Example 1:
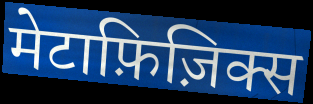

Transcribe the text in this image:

मेटाफ़िज़िक्स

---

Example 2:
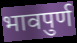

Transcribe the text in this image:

भावपुर्ण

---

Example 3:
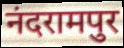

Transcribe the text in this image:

नंदरामपुर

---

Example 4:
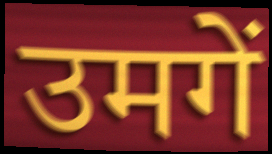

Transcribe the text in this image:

उमगें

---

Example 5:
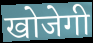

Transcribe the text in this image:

खोजेगी